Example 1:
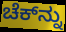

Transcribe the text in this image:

ಚೆಕ್‌ನ್ನು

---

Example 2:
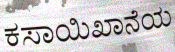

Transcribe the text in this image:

ಕಸಾಯಿಖಾನೆಯ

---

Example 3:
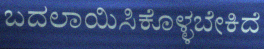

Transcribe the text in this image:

ಬದಲಾಯಿಸಿಕೊಳ್ಳಬೇಕಿದೆ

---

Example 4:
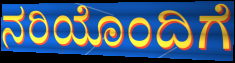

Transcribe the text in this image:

ನರಿಯೊಂದಿಗೆ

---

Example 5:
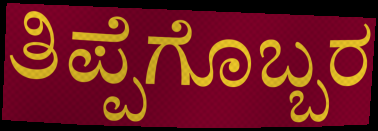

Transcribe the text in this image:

ತಿಪ್ಪೆಗೊಬ್ಬರ